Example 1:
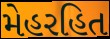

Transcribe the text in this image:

મેહરહિત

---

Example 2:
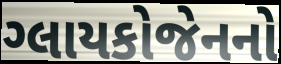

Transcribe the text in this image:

ગ્લાયકોજેનનો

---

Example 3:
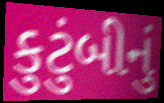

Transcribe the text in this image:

કુટુંબીનું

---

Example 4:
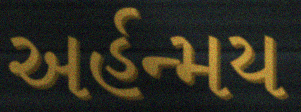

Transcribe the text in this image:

અર્હન્મય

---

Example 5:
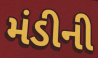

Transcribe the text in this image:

મંડીની